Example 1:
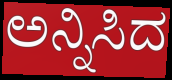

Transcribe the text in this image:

ಅನ್ನಿಸಿದ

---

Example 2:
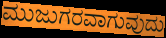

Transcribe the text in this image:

ಮುಜುಗರವಾಗುವುದು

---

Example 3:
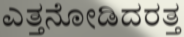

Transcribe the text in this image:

ಎತ್ತನೋಡಿದರತ್ತ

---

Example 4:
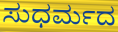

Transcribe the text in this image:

ಸುಧರ್ಮದ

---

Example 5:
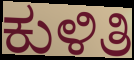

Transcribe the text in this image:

ಕುಳಿತಿ